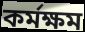
কৰ্মক্ষম